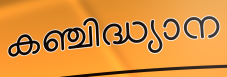
കഞ്ചിദ്ധ്യാന